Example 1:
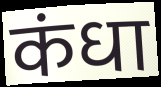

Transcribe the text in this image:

कंधा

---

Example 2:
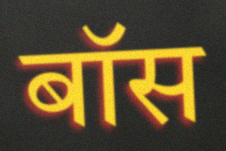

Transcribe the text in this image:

बॉस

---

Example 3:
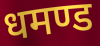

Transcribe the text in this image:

धमण्ड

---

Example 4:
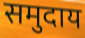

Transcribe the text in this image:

समुदाय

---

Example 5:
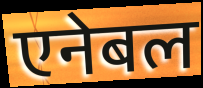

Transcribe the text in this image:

एनेबल